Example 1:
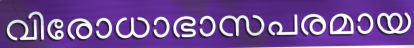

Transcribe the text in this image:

വിരോധാഭാസപരമായ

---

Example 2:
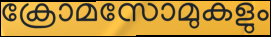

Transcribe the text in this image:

ക്രോമസോമുകളും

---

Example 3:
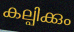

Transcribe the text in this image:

കല്പിക്കും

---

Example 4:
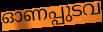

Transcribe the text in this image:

ഓണപ്പുടവ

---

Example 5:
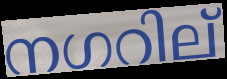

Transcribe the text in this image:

നഗറില്